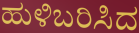
ಹುಳಿಬರಿಸಿದ